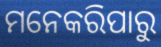
ମନେକରିପାରୁ